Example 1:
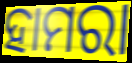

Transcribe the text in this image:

ହାମରା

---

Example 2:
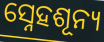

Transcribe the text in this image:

ସ୍ନେହଶୂନ୍ୟ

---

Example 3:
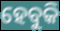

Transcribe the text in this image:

ହେବୁକି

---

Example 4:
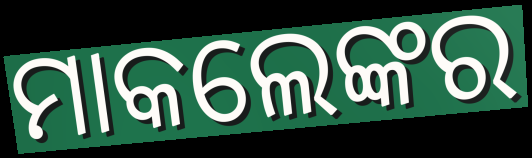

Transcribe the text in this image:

ମାକଲେଙ୍କର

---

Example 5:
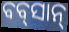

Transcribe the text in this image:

ବବ୍‌ସାନ୍